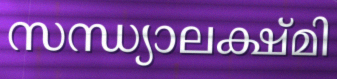
സന്ധ്യാലക്ഷ്മി